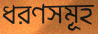
ধরণসমূহ